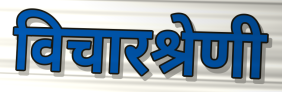
विचारश्रेणी